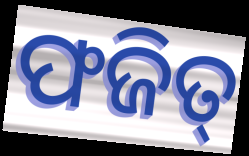
ଫଜିତ୍